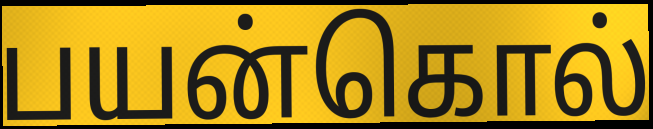
பயன்கொல்